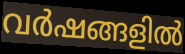
വർഷങ്ങളിൽ